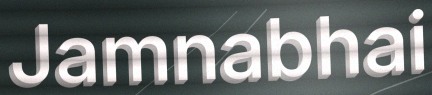
Jamnabhai